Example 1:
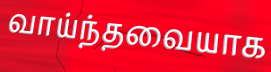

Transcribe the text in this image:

வாய்ந்தவையாக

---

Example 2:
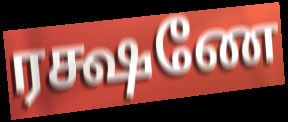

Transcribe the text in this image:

ரக்ஷணே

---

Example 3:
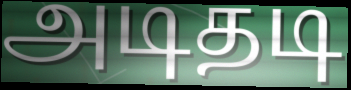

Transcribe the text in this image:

அடிதடி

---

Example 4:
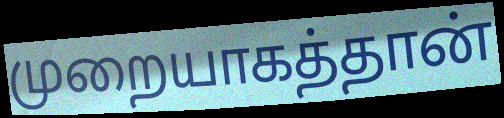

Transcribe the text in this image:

முறையாகத்தான்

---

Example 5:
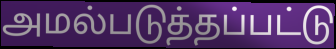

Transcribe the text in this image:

அமல்படுத்தப்பட்டு